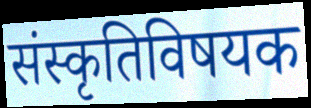
संस्कृतिविषयक